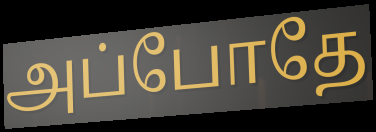
அப்போதே